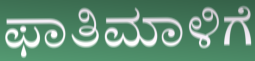
ಫಾತಿಮಾಳಿಗೆ